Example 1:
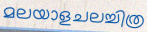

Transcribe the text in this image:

മലയാളചലച്ചിത്ര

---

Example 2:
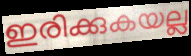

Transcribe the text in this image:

ഇരിക്കുകയല്ല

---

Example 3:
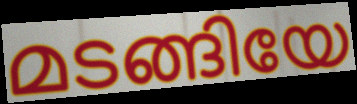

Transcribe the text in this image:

മടങ്ങിയേ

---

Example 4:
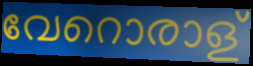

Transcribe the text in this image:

വേറൊരാള്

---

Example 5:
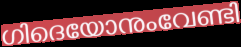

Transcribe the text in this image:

ഗിദെയോനുംവേണ്ടി